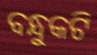
ବନ୍ଧୁକଟି